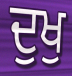
ਦੁਖੁ